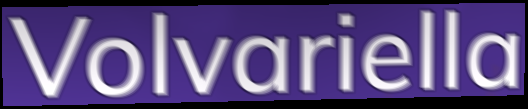
Volvariella